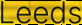
Leeds